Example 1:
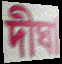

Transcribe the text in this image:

দীঘা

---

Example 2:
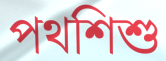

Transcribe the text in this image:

পথশিশু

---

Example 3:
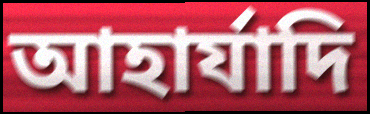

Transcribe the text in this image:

আহার্যাদি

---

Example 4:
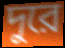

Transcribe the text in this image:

দুরে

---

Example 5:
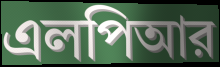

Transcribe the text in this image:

এলপিআর